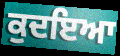
ਕੁਦਇਆ